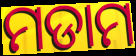
ମଡାମ